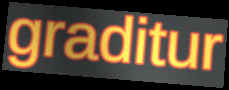
graditur